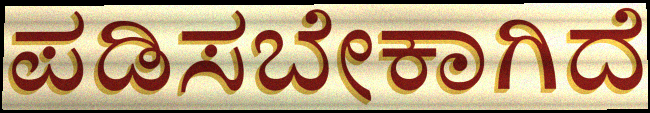
ಪಡಿಸಬೇಕಾಗಿದೆ